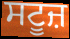
ਸਟੂਜ਼